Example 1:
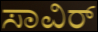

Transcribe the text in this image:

ಸಾವಿರ್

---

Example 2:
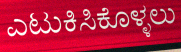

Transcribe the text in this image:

ಎಟುಕಿಸಿಕೊಳ್ಳಲು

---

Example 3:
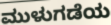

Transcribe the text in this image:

ಮುಳುಗಡೆಯ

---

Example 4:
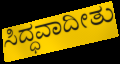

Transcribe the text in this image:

ಸಿದ್ಧವಾದೀತು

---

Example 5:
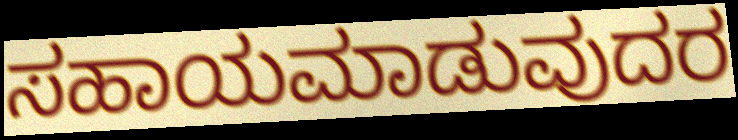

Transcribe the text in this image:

ಸಹಾಯಮಾಡುವುದರ